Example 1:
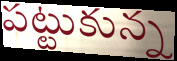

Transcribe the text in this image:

పట్టుకున్న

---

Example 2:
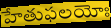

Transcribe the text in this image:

హేతుఫలయోః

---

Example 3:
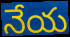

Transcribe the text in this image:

నేయ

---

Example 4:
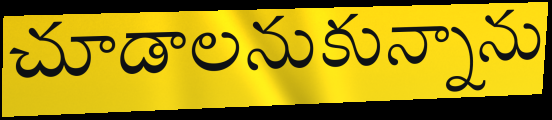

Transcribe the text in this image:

చూడాలనుకున్నాను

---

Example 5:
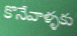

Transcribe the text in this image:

కొనేవాళ్ళకు